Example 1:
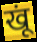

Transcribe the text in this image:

खूं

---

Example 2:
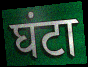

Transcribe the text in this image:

घंटा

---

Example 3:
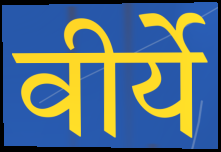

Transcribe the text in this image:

वीर्ये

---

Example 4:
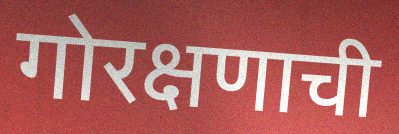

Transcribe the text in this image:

गोरक्षणाची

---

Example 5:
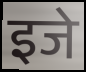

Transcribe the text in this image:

इजे